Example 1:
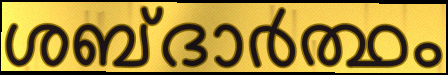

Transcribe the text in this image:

ശബ്ദാർത്ഥം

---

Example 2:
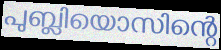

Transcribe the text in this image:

പുബ്ലിയൊസിന്റെ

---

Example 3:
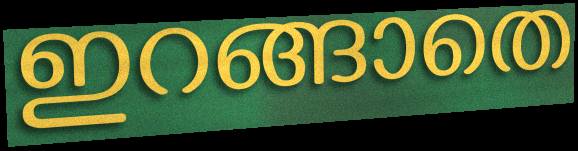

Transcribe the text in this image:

ഇറങ്ങാതെ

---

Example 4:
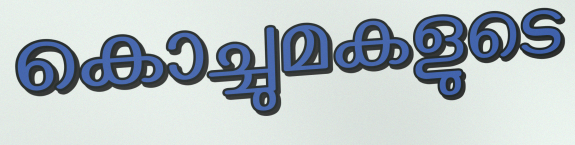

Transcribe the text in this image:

കൊച്ചുമകളുടെ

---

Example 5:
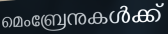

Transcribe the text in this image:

മെംബ്രേനുകൾക്ക്